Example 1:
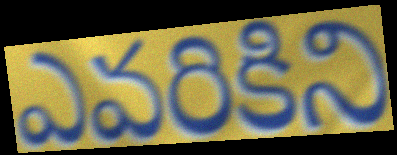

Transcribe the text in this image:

ఎవరికిని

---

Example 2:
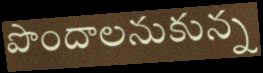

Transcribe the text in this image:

పొందాలనుకున్న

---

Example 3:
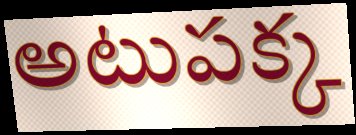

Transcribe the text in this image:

అటుపక్క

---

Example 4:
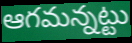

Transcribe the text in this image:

ఆగమన్నట్టు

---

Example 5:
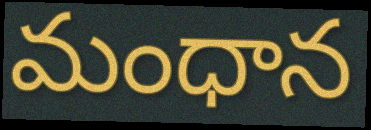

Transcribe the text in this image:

మంధాన